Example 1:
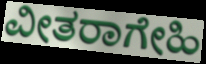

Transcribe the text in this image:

ವೀತರಾಗೇಹಿ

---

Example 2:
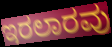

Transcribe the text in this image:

ಇರಲಾರವು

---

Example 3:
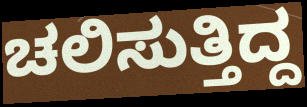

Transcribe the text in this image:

ಚಲಿಸುತ್ತಿದ್ದ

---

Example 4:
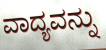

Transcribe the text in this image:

ವಾದ್ಯವನ್ನು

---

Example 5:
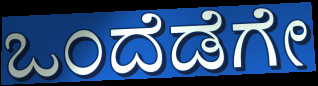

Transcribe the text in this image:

ಒಂದೆಡೆಗೇ